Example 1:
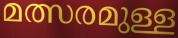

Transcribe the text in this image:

മത്സരമുള്ള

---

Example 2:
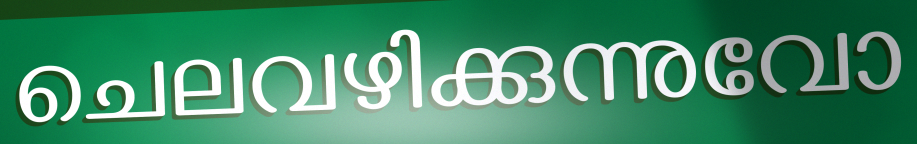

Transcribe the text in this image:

ചെലവഴിക്കുന്നുവോ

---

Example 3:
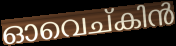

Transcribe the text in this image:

ഓവെച്കിൻ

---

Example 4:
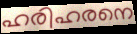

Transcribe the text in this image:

ഹരിഹരനെ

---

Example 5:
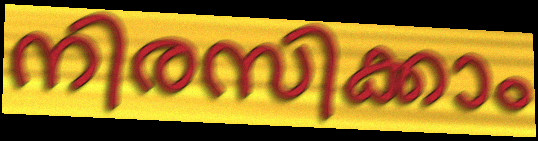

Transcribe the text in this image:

നിരസിക്കാം